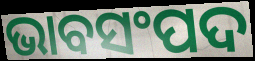
ଭାବସଂପଦ